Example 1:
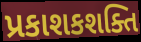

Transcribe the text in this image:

પ્રકાશકશક્તિ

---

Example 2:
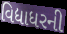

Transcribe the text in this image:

વિદ્યાધરની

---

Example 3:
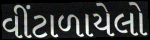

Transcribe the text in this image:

વીંટાળાયેલો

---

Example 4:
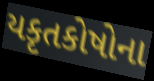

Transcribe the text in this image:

યકૃતકોષોના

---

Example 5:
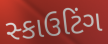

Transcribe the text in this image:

સ્કાઉટિંગ